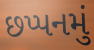
છપ્પનમું